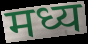
मध्‍य